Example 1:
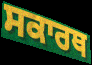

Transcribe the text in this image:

ਸਕਾਰਥ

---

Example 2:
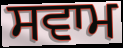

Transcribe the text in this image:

ਸਵਾਮ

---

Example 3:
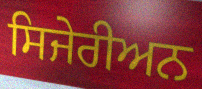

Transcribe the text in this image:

ਸਿਜੇਰੀਅਨ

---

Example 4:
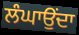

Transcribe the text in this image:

ਲੰਘਾਉਂਦਾ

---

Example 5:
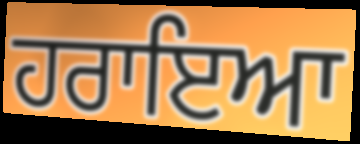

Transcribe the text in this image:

ਹਰਾਇਆ